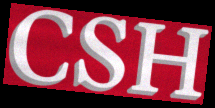
CSH